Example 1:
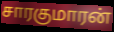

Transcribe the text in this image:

சாரகுமாரன்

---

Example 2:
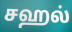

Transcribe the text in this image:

சஹல்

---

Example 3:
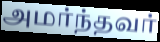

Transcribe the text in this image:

அமர்ந்தவர்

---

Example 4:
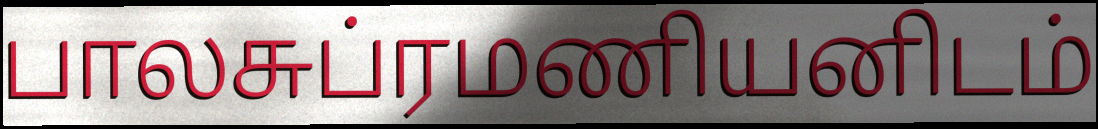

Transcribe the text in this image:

பாலசுப்ரமணியனிடம்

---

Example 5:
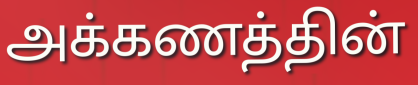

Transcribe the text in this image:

அக்கணத்தின்